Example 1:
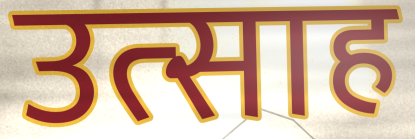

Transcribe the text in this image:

उत्‍साह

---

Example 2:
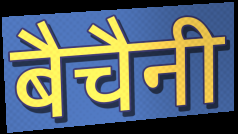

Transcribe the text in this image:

बैचैनी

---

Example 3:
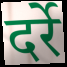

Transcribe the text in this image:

दर्रे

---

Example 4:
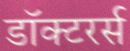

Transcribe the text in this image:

डॉक्टरर्स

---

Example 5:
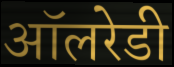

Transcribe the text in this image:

ऑलरेडी